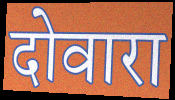
दोवारा